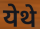
येथे